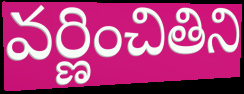
వర్ణించితిని